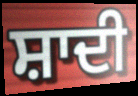
ਸ਼ਾਦੀ